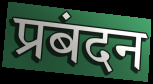
प्रबंदन